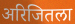
अरिजितला